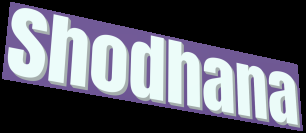
Shodhana